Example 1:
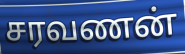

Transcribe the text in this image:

சரவணன்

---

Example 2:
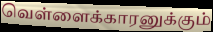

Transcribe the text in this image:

வெள்ளைக்காரனுக்கும்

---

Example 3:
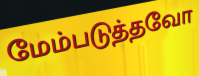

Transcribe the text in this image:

மேம்படுத்தவோ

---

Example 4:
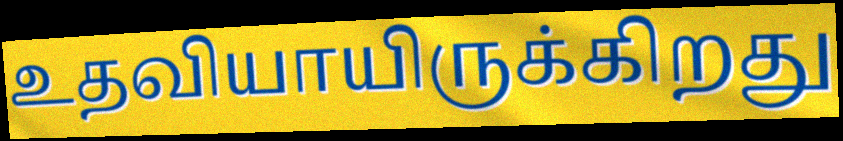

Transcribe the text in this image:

உதவியாயிருக்கிறது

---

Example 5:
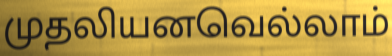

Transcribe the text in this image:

முதலியனவெல்லாம்